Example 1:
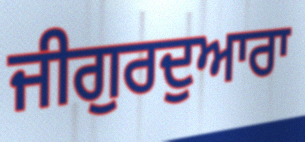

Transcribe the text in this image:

ਜੀਗੁਰਦੁਆਰਾ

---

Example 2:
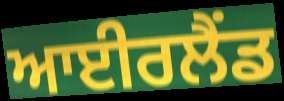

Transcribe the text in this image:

ਆਈਰਲੈਂਡ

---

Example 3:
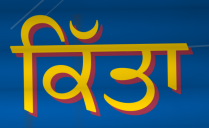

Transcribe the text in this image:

ਕਿੱਤਾ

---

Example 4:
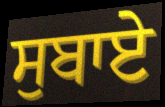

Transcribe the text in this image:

ਸੁਬਾਏ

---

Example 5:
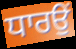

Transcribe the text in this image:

ਧਾਰਉਂ